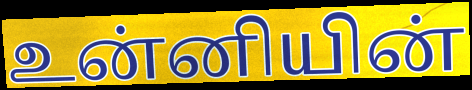
உன்னியின்